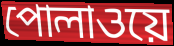
পোলাওয়ে